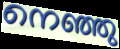
നെഞ്ഞു